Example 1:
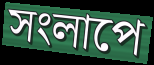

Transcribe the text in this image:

সংলাপে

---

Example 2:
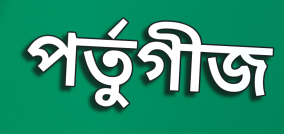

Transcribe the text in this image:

পৰ্তুগীজ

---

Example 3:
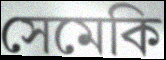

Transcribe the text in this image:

সেমেকি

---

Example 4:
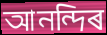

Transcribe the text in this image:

আনন্দিৰ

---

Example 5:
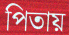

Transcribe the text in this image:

পিতায়